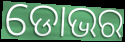
ଡୋଭର